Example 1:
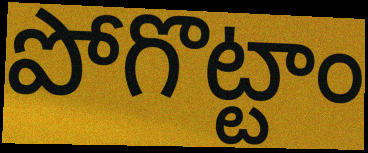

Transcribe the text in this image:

పోగొట్టాం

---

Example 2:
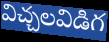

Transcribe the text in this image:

విచ్చలవిడిగ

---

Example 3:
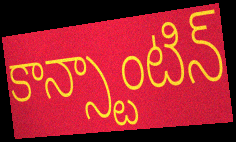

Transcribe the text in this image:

కాన్స్టాంటిన్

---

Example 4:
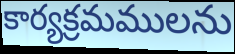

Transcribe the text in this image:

కార్యక్రమములను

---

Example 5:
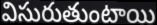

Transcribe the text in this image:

విసురుతుంటాయి